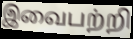
இவைபற்றி